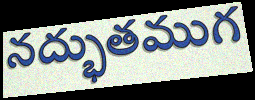
నద్భుతముగ